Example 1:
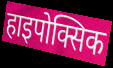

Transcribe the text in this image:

हाइपोक्सिक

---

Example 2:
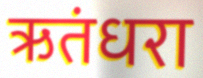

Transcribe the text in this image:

ऋतंधरा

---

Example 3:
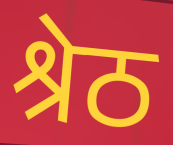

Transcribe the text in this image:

श्रेठ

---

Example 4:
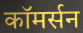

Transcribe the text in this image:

कॉमर्सन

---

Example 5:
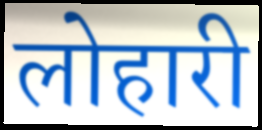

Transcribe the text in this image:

लोहारी